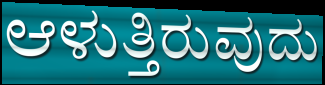
ಆಳುತ್ತಿರುವುದು